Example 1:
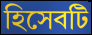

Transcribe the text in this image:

হিসেবটি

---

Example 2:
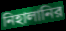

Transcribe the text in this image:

নিহালানির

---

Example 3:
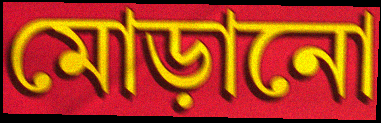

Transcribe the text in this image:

মোড়ানো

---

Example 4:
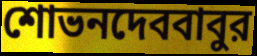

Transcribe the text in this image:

শোভনদেববাবুর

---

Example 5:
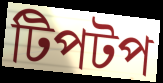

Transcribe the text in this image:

টিপটপ